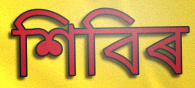
শিবিৰ